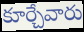
కూర్చేవారు